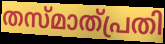
തസ്മാത്പ്രതി